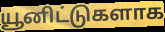
யூனிட்டுகளாக